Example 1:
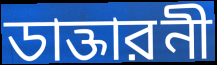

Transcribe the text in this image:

ডাক্তারনী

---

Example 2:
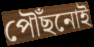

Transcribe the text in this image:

পৌঁছনোই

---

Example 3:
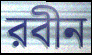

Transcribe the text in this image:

রবীন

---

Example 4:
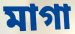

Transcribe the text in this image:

মাগা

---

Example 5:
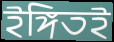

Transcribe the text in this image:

ইঙ্গিতই